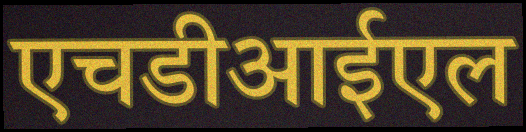
एचडीआईएल